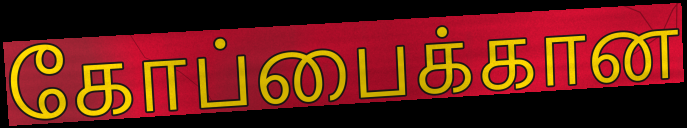
கோப்பைக்கான